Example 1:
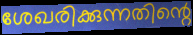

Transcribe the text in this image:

ശേഖരിക്കുന്നതിന്റെ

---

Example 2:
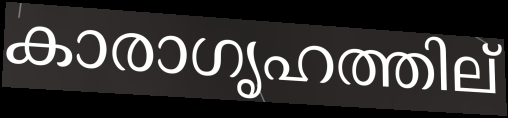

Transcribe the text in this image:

കാരാഗൃഹത്തില്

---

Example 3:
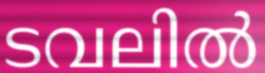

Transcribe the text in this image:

ടവലിൽ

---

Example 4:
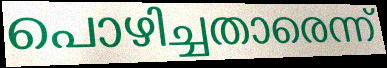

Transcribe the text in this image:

പൊഴിച്ചതാരെന്ന്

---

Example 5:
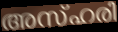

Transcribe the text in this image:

അസ്ഹരി